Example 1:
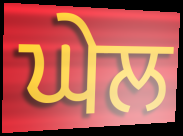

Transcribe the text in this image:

ਘੇਲ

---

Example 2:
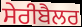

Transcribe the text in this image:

ਸੇਰੀਬੈਲਰ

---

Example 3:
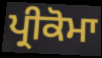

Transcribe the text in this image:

ਪ੍ਰੀਕੋਮਾ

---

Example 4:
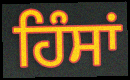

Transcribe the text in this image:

ਹਿੰਸਾਂ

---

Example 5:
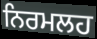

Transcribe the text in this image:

ਨਿਰਮਲਹ